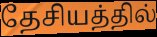
தேசியத்தில்